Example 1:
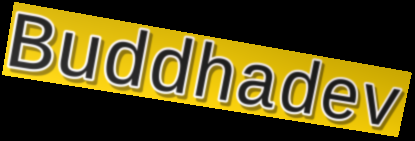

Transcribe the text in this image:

Buddhadev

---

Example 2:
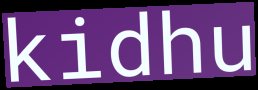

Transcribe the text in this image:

kidhu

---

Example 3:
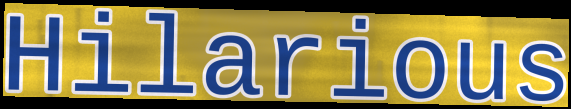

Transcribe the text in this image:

Hilarious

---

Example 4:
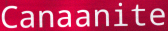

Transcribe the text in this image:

Canaanite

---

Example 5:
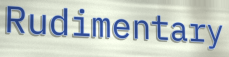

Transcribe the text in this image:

Rudimentary